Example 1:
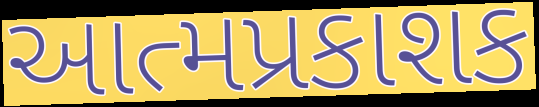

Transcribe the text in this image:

આત્મપ્રકાશક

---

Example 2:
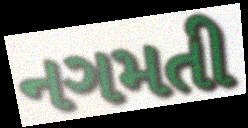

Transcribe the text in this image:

નગમતી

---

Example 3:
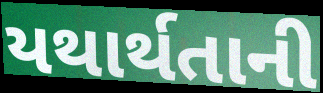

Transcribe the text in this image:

યથાર્થતાની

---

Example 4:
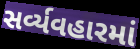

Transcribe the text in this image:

સર્વ્યવહારમાં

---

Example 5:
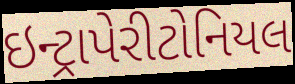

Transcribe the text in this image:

ઇન્ટ્રાપેરીટોનિયલ